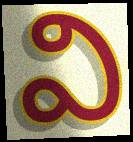
వి